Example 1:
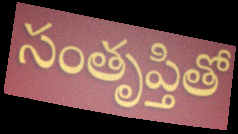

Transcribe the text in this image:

సంతృప్తితో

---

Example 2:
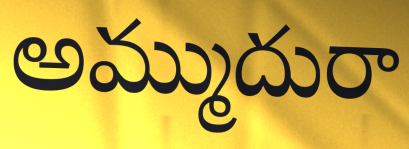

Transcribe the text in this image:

అమ్ముదురా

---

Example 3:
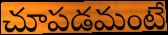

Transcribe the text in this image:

చూపడమంటే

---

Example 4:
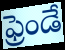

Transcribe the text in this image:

ఫ్రెండే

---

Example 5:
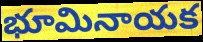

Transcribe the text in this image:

భూమినాయక